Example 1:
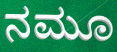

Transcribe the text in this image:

ನಮೂ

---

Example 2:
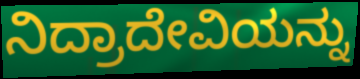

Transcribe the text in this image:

ನಿದ್ರಾದೇವಿಯನ್ನು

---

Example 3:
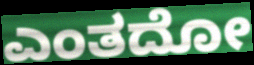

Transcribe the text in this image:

ಎಂತದೋ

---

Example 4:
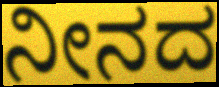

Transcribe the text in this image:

ನೀನದ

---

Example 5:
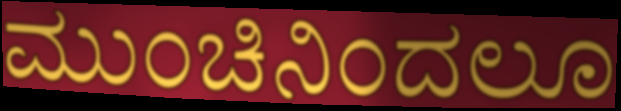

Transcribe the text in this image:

ಮುಂಚಿನಿಂದಲೂ